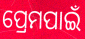
ପ୍ରେମପାଇଁ